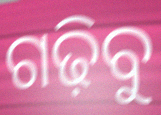
ଗଢ଼ିବୁ